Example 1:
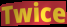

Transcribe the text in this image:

Twice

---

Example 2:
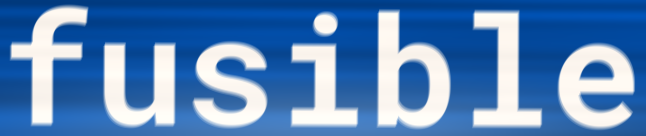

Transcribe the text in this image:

fusible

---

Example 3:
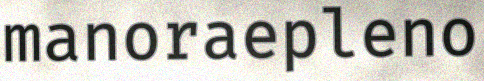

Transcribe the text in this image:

manoraepleno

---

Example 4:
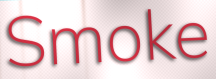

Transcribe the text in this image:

Smoke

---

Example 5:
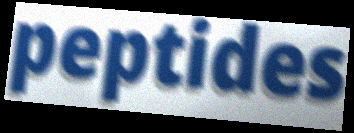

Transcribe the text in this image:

peptides